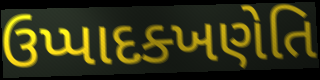
ઉપ્પાદક્ખણેતિ